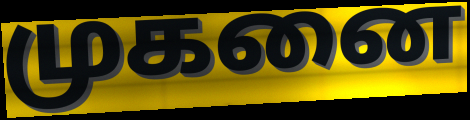
முகனை